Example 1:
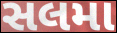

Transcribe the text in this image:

સલમા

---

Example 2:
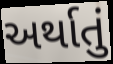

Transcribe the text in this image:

અર્થાતું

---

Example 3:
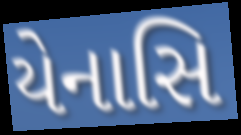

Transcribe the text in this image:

યેનાસિ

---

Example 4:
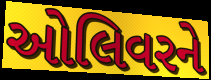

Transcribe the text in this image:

ઓલિવરને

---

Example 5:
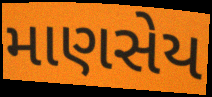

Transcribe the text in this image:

માણસેય